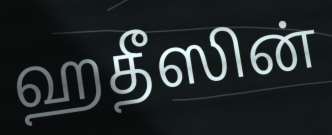
ஹதீஸின்